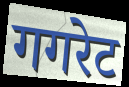
गगरेट